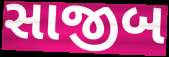
સાજીબ